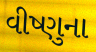
વીષ્ણુના